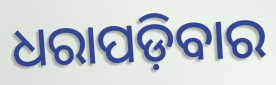
ଧରାପଡ଼ିବାର